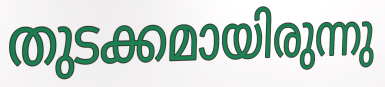
തുടക്കമായിരുന്നു